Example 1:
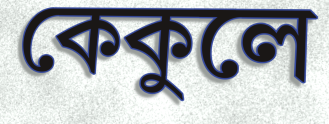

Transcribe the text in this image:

কেকুলে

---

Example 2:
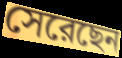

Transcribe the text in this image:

সেরেছেন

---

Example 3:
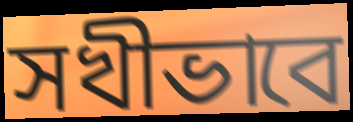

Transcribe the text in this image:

সখীভাবে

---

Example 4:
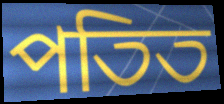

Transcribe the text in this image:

পতিত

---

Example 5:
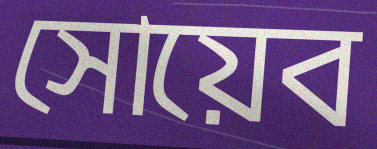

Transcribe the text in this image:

সোয়েব